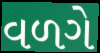
વળગે